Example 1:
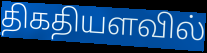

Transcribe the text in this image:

திகதியளவில்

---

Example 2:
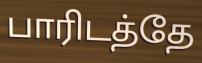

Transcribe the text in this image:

பாரிடத்தே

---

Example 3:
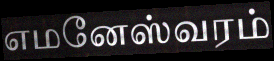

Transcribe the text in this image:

எமனேஸ்வரம்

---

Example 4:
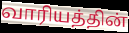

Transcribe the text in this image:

வாரியத்தின்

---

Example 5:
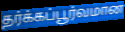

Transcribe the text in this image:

தர்க்கப்பூர்வமான